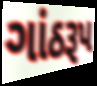
ગાંઠરૂપ